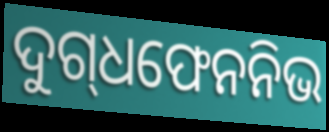
ଦୁଗ୍‍ଧଫେନନିଭ